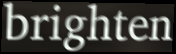
brighten